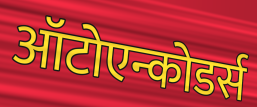
ऑटोएन्कोडर्स